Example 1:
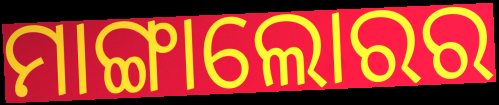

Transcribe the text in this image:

ମାଙ୍ଗାଲୋରର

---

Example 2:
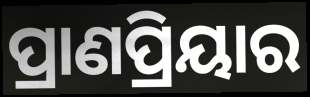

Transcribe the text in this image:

ପ୍ରାଣପ୍ରିୟାର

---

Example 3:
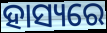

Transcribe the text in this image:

ହାସ୍ୟରେ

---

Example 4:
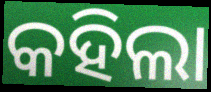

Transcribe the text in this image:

କହିଲା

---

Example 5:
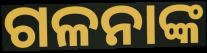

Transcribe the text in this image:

ଗଳନାଙ୍କ